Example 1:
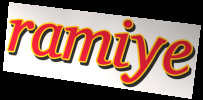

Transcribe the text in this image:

ramiye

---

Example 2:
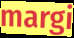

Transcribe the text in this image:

margi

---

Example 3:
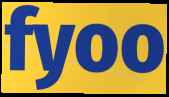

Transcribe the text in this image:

fyoo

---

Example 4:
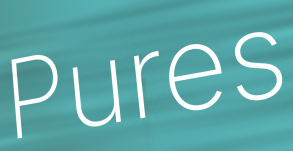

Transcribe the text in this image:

Pures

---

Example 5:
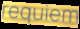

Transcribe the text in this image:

requiem